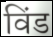
विंड